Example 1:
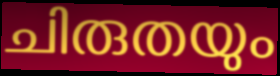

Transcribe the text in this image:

ചിരുതയും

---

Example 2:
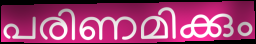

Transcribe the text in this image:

പരിണമിക്കും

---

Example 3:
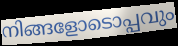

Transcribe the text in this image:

നിങ്ങളോടൊപ്പവും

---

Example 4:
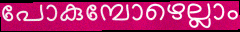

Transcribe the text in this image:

പോകുമ്പോഴെല്ലാം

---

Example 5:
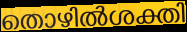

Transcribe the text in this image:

തൊഴിൽശക്തി